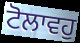
ਟੋਲਾਵਹੁ